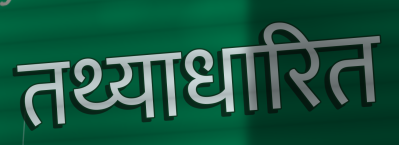
तथ्याधारित